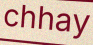
chhay